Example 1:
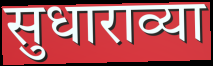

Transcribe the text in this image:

सुधाराव्या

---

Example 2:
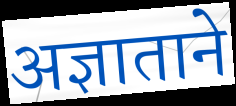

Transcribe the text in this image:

अज्ञाताने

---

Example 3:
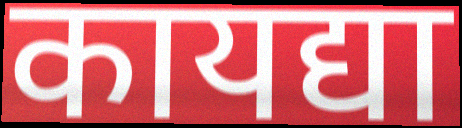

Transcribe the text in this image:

कायद्या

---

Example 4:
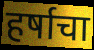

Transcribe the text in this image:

हर्षाचा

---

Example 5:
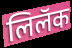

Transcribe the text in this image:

लिलॅक